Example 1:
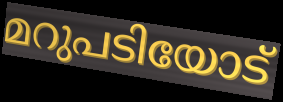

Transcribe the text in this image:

മറുപടിയോട്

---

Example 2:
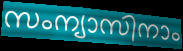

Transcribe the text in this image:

സംന്യാസിനാം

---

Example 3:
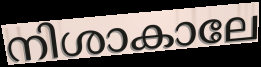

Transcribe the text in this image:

നിശാകാലേ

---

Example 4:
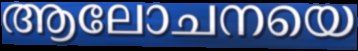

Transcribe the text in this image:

ആലോചനയെ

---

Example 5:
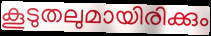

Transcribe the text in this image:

കൂടുതലുമായിരിക്കും